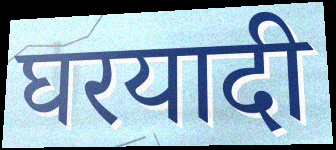
घरयादी